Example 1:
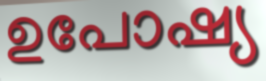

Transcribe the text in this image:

ഉപോഷ്യ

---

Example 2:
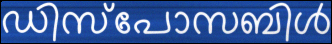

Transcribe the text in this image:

ഡിസ്പോസബിൾ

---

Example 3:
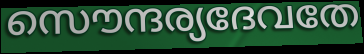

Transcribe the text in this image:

സൌന്ദര്യദേവതേ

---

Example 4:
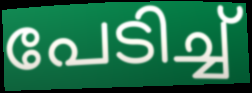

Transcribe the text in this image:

പേടിച്ച്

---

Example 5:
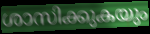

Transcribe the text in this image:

ശാസിക്കുകയും